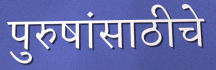
पुरुषांसाठीचे